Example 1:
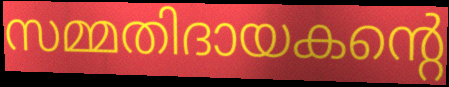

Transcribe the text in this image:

സമ്മതിദായകന്റെ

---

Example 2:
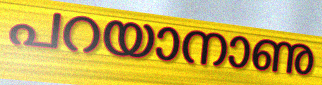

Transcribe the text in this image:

പറയാനാണു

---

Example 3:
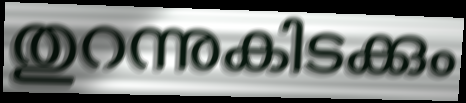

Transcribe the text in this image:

തുറന്നുകിടക്കും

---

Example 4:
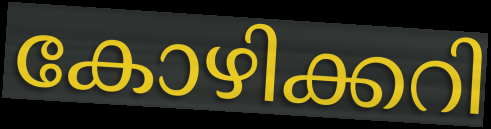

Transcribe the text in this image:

കോഴിക്കറി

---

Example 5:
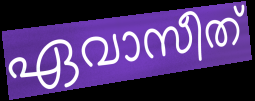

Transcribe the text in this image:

ഏവാസീത്